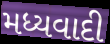
મધ્યવાદી